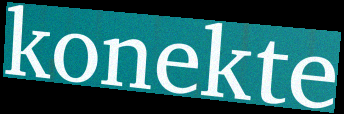
konekte